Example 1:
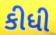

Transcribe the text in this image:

કીધી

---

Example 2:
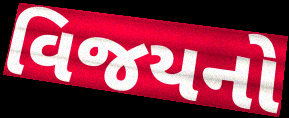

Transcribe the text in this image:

વિજયનો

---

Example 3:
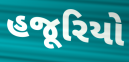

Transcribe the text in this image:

હજૂરિયો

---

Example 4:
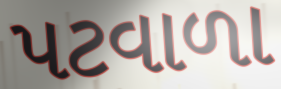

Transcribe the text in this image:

પટવાળા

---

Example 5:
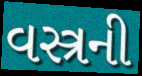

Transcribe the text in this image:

વસ્ત્રની